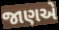
જાણએ